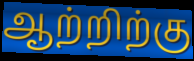
ஆற்றிற்கு